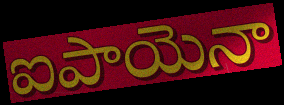
ఐపాయెనా